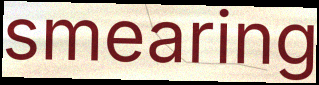
smearing